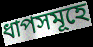
ধাপসমূহে